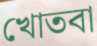
খোতবা